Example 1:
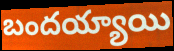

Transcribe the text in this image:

బందయ్యాయి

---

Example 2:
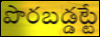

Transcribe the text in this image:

పొరబడ్డట్టే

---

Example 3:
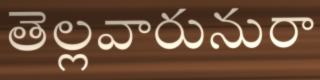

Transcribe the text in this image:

తెల్లవారునురా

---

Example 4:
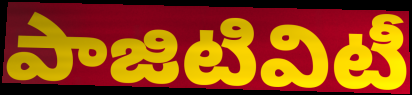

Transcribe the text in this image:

పాజిటివిటీ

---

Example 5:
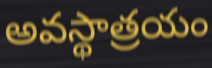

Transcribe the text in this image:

అవస్థాత్రయం